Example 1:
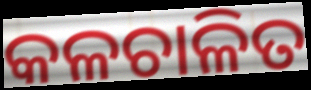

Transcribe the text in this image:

କଳଚାଳିତ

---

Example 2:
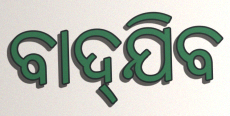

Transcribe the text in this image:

ବାଦ୍‌ଯିବ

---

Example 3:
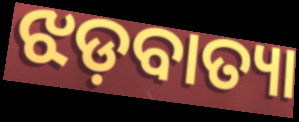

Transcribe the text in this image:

ଝଡ଼ବାତ୍ୟା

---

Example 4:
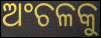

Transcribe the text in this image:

ଅଂଚଳକୁ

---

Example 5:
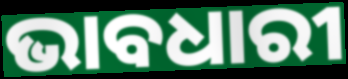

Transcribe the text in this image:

ଭାବଧାରୀ